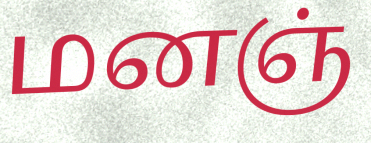
மனஞ்